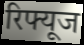
रिफ्यूज